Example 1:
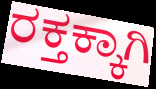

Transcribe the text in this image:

ರಕ್ತಕ್ಕಾಗಿ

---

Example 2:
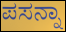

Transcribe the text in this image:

ಪಸನ್ನಾ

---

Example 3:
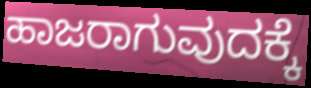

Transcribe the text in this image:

ಹಾಜರಾಗುವುದಕ್ಕೆ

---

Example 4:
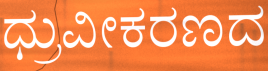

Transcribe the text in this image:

ಧ್ರುವೀಕರಣದ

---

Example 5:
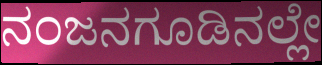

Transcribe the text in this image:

ನಂಜನಗೂಡಿನಲ್ಲೇ